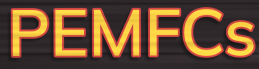
PEMFCs